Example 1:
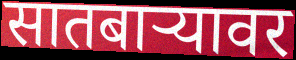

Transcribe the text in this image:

सातबाऱ्यावर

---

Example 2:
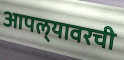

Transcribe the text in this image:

आपल्यावरची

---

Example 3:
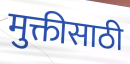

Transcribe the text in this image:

मुक्तीसाठी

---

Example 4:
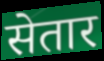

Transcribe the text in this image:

सेतार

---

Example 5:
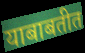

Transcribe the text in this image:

याबाबतीत